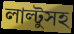
লাল্টুসহ